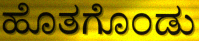
ಹೊತಗೊಂಡು